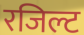
रजिल्ट